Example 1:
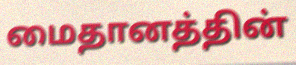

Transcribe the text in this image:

மைதானத்தின்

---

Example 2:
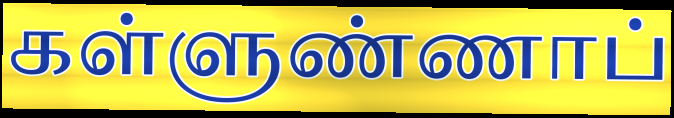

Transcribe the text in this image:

கள்ளுண்ணாப்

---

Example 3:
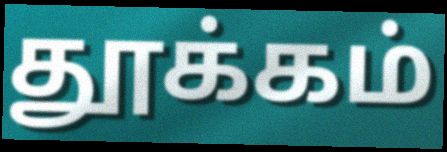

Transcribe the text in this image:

தூக்கம்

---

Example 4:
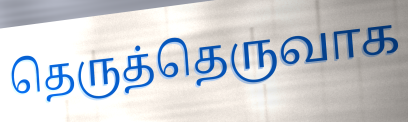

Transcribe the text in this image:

தெருத்தெருவாக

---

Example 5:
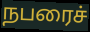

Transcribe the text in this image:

நபரைச்